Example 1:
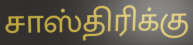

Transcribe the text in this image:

சாஸ்திரிக்கு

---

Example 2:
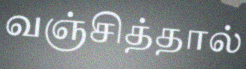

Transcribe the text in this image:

வஞ்சித்தால்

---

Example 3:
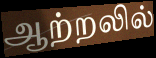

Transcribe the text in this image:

ஆற்றலில்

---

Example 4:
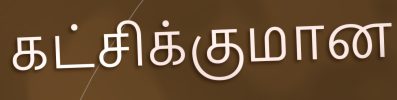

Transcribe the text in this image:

கட்சிக்குமான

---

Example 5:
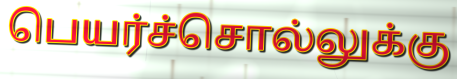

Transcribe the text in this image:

பெயர்ச்சொல்லுக்கு